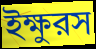
ইক্ষুরস